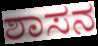
ಶಾಸನ